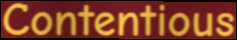
Contentious